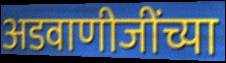
अडवाणीजींच्या